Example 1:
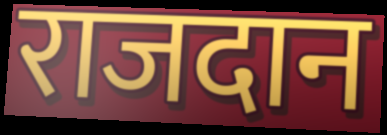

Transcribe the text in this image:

राजदान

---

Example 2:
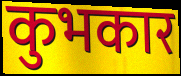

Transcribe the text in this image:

कुभकार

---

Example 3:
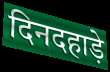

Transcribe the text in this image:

दिनदहाड़े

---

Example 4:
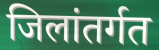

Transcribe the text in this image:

जिलांतर्गत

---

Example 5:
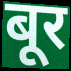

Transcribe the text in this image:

बूर